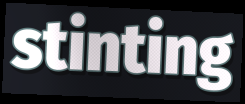
stinting